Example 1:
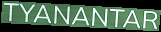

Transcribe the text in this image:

TYANANTAR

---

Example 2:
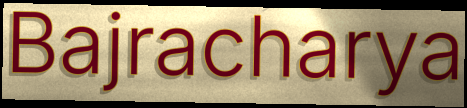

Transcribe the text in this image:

Bajracharya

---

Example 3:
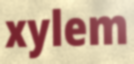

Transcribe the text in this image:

xylem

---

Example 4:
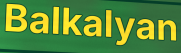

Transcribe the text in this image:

Balkalyan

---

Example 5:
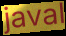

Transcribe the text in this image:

javal